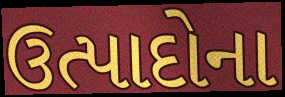
ઉત્પાદોના